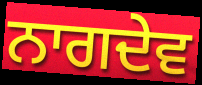
ਨਾਗਦੇਵ